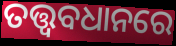
ତତ୍ତ୍ଵବଧାନରେ